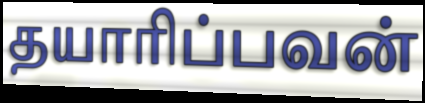
தயாரிப்பவன்